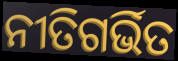
ନୀତିଗର୍ଭିତ